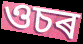
ওচৰ